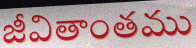
జీవితాంతము